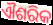
ଐଶରିକ